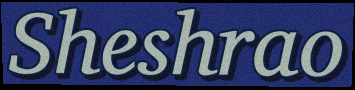
Sheshrao